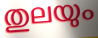
തുലയും